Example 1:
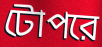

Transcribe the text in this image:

টোপরে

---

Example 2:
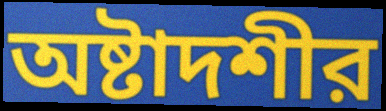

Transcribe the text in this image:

অষ্টাদশীর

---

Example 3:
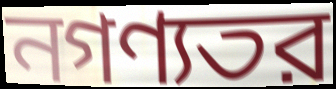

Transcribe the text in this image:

নগণ্যতর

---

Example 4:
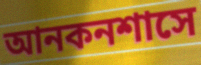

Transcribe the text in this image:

আনকনশাসে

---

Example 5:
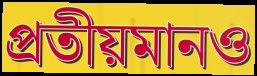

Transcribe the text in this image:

প্রতীয়মানও